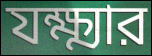
যক্ষ্মার